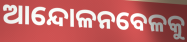
ଆନ୍ଦୋଳନବେଳକୁ